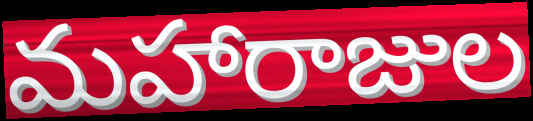
మహారాజుల